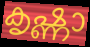
കൃഷ്ണാ